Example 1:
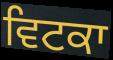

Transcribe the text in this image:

ਵਿਟਕਾ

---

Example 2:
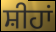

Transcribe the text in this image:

ਸ਼ੀਹਾਂ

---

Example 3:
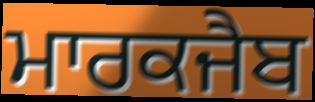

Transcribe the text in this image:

ਮਾਰਕਜੈਬ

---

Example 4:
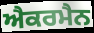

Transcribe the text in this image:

ਐਕਰਮੈਨ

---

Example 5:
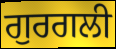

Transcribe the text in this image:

ਗੁਰਗਲੀ